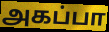
அகப்பா